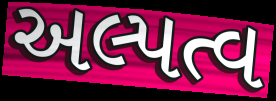
અલ્પત્વ